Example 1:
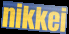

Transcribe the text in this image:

nikkei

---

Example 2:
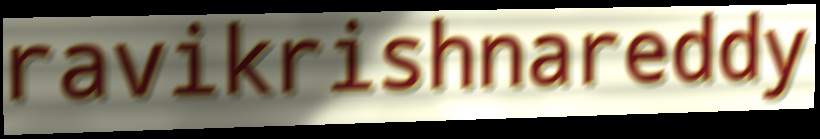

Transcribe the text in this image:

ravikrishnareddy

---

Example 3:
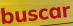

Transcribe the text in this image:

buscar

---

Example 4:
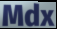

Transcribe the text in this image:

Mdx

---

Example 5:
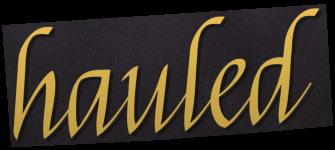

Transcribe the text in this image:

hauled